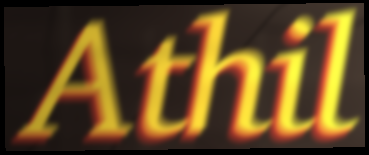
Athil